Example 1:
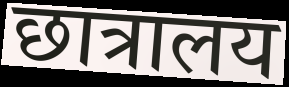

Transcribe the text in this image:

छात्रालय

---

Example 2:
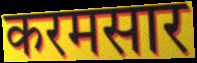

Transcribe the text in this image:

करमसार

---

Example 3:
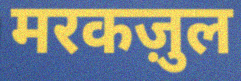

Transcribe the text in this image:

मरकज़ुल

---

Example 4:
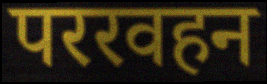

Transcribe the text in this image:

पररवहन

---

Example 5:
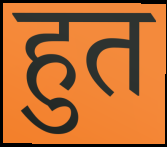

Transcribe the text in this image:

हुत